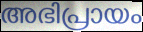
അഭിപ്രായം